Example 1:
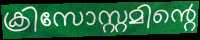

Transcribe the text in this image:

ക്രിസോസ്റ്റമിന്റെ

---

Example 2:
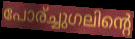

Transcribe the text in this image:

പോര്ച്ചുഗലിന്റെ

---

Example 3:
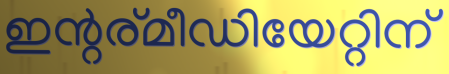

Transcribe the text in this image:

ഇന്റര്മീഡിയേറ്റിന്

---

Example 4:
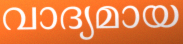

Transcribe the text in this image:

വാദ്യമായ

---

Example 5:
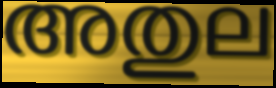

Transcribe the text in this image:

അതുല